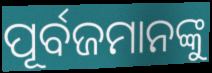
ପୂର୍ବଜମାନଙ୍କୁ